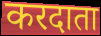
करदाता